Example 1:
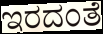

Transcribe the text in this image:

ಇರದಂತೆ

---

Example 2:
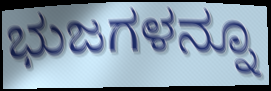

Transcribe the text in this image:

ಭುಜಗಳನ್ನೂ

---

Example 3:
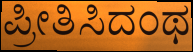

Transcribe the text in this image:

ಪ್ರೀತಿಸಿದಂಥ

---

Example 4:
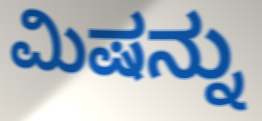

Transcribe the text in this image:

ಮಿಷನ್ನು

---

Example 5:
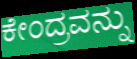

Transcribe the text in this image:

ಕೇಂದ್ರವನ್ನು